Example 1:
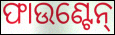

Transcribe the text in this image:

ଫାଉଣ୍ଟେନ୍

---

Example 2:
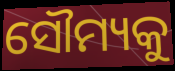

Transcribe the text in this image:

ସୌମ୍ୟକୁ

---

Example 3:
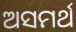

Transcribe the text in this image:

ଅସମର୍ଥ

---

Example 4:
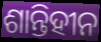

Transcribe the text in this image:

ଶାନ୍ତିହୀନ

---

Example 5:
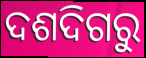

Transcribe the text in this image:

ଦଶଦିଗରୁ